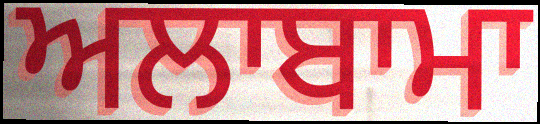
ਅਲਾਬਾਮਾ